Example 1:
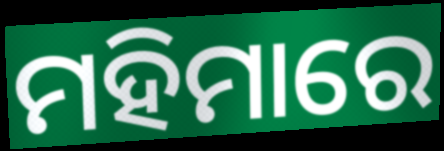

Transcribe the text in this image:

ମହିମାରେ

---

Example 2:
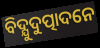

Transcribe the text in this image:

ବିଦ୍ଯୁଦୁତ୍ପାଦନେ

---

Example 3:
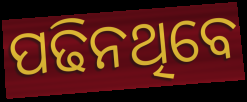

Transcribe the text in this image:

ପଢିନଥିବେ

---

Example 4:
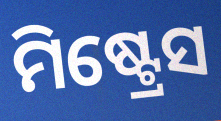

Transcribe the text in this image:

ମିଷ୍ଟ୍ରେସ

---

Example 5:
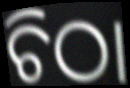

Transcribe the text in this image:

ଚିଠା